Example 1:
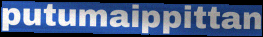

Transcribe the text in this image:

putumaippittan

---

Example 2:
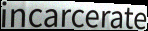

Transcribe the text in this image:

incarcerate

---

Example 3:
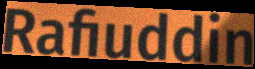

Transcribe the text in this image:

Rafiuddin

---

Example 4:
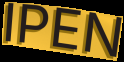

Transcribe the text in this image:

IPEN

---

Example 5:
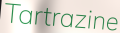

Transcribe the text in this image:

Tartrazine